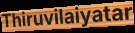
Thiruvilaiyatar